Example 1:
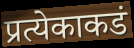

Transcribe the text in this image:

प्रत्येकाकडं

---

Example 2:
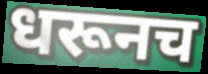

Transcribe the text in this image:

धरूनच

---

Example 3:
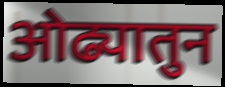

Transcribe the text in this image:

ओढ्यातुन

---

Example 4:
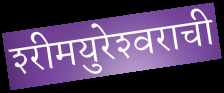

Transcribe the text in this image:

श्रीमयुरेश्वराची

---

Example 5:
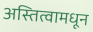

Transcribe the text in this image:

अस्तित्वामधून